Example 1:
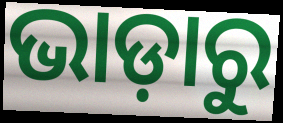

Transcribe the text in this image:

ଭାଡ଼ାରୁ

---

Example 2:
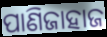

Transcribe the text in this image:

ପାଣିଜାହାଜ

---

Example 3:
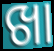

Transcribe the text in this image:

ଖା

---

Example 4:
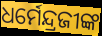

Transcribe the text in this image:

ଧର୍ମେନ୍ଦ୍ରଜୀଙ୍କ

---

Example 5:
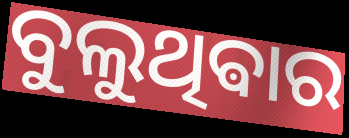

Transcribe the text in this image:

ବୁଲୁଥିଵାର